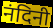
नंदिनी